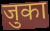
जुका